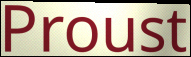
Proust